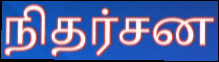
நிதர்சன